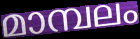
മാമ്പലം